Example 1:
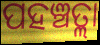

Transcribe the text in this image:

ପହଞ୍ଚତ୍ଲା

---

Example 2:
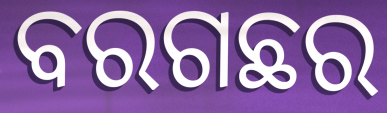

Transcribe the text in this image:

ବରଗଛର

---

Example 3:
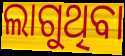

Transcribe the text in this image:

ଲାଗୁଥିବା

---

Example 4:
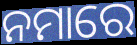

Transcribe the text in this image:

ନମାରେ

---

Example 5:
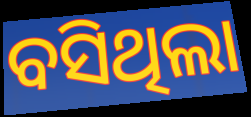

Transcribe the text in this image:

ବସିଥିଲା